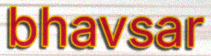
bhavsar